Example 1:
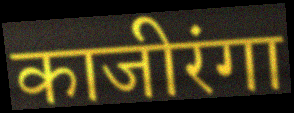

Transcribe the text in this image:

काजीरंगा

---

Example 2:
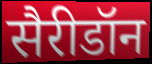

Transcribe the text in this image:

सैरीडॉन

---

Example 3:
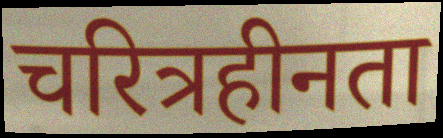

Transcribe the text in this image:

चरित्रहीनता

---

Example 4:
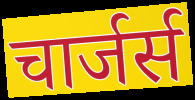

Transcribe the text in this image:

चार्जर्स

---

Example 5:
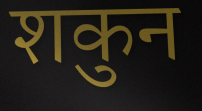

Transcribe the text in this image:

शकुन